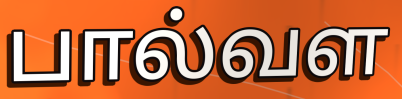
பால்வள